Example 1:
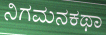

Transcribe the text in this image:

ನಿಗಮನಕಥಾ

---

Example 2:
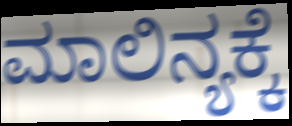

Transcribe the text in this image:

ಮಾಲಿನ್ಯಕ್ಕೆ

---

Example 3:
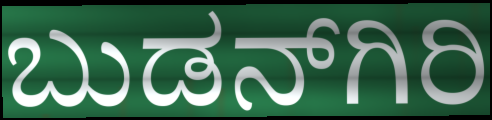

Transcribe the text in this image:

ಬುಡನ್‍ಗಿರಿ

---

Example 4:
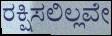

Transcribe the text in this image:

ರಕ್ಷಿಸಲಿಲ್ಲವೇ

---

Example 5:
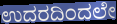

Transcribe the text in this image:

ಉದರದಿಂದಲೇ